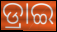
ଡ୍ରାଇ